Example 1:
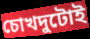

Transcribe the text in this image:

চোখদুটোই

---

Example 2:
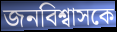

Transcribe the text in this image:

জনবিশ্বাসকে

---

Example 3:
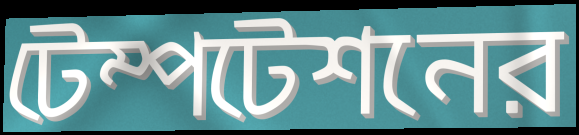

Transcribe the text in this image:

টেম্পটেশনের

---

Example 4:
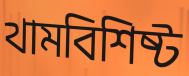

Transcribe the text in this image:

থামবিশিষ্ট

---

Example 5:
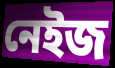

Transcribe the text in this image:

নেইজ